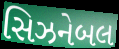
સિઝનેબલ